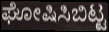
ಘೋಷಿಸಿಬಿಟ್ಟ